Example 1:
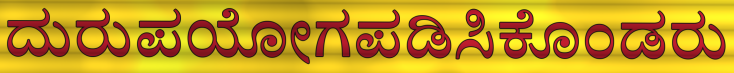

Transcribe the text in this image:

ದುರುಪಯೋಗಪಡಿಸಿಕೊಂಡರು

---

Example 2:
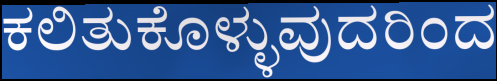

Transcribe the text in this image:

ಕಲಿತುಕೊಳ್ಳುವುದರಿಂದ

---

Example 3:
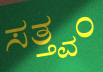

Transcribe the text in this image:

ಸತ್ತ್ವಂ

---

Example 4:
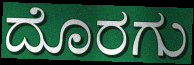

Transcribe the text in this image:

ದೊರಗು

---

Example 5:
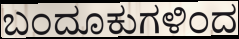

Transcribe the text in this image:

ಬಂದೂಕುಗಳಿಂದ